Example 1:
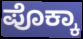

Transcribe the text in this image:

ಪೊಕ್ಕಾ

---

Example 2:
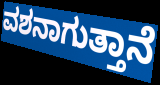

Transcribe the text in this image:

ವಶನಾಗುತ್ತಾನೆ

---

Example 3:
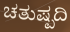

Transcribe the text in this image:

ಚತುಷ್ಪದಿ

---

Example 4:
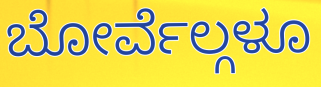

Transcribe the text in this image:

ಬೋರ್ವೆಲ್ಗಳೂ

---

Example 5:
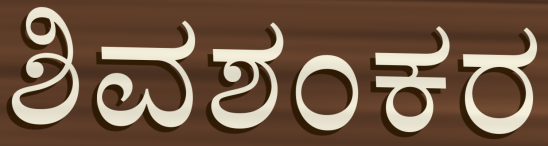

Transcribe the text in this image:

ಶಿವಶಂಕರ